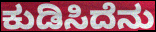
ಕುಡಿಸಿದೆನು